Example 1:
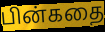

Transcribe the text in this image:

பின்கதை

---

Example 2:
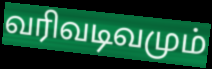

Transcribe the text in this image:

வரிவடிவமும்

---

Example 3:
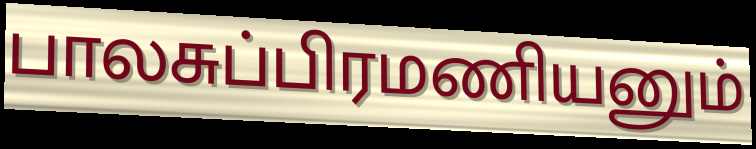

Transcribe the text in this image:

பாலசுப்பிரமணியனும்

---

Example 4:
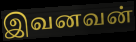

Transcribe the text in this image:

இவனவன்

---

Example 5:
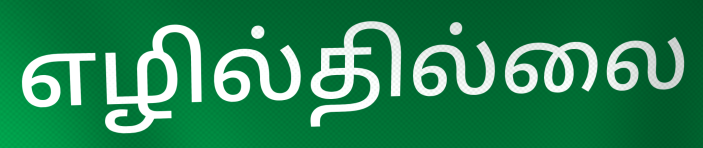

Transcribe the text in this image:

எழில்தில்லை